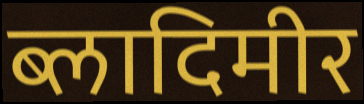
ब्लादिमीर